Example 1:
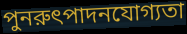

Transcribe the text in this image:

পুনরুৎপাদনযোগ্যতা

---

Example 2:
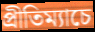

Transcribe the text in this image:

প্রীতিম্যাচে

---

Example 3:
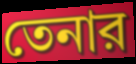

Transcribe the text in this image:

তেনার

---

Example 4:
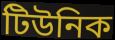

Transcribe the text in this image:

টিউনিক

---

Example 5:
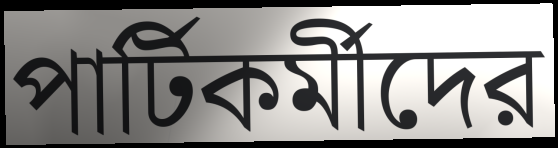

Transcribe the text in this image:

পার্টিকর্মীদের